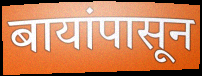
बायांपासून